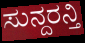
ಸುನ್ದರನ್ತಿ